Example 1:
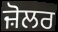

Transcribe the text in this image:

ਜ਼ੋਲਰ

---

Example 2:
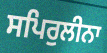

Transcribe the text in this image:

ਸਪਿਰੁਲੀਨਾ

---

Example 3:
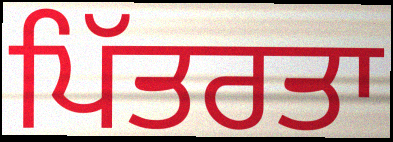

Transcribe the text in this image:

ਪਿੱਤਰਤਾ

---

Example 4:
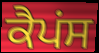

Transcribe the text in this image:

ਕੈਪਂਸ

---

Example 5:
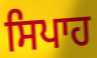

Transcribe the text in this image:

ਸਿਪਾਹ